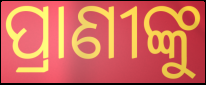
ପ୍ରାଣୀଙ୍କୁ